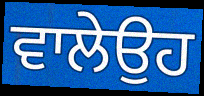
ਵਾਲੇਉਹ